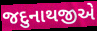
જદુનાથજીએ